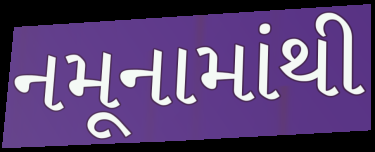
નમૂનામાંથી